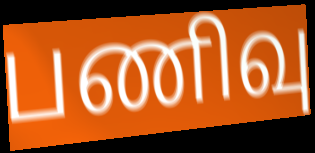
பணிவு